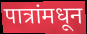
पात्रांमधून